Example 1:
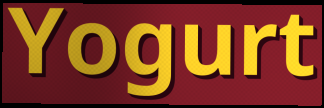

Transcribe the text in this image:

Yogurt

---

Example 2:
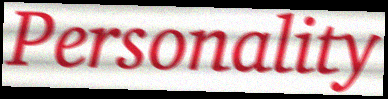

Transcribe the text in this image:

Personality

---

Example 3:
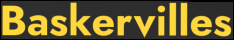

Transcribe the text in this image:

Baskervilles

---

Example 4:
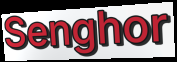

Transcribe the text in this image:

Senghor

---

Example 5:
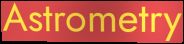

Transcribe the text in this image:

Astrometry